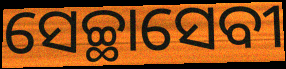
ସେଚ୍ଛାସେବୀ